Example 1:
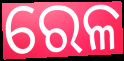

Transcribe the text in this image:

ରେଳ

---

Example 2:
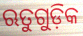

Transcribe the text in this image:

ଋତୁଗୁଡ଼ିକ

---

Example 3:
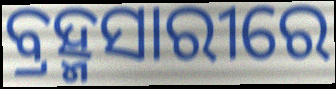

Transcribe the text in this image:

ବ୍ରହ୍ମସାରୀରେ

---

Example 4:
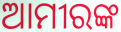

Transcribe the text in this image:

ଆମୀରଙ୍କ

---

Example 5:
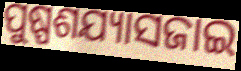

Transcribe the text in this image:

ପୁଷ୍ପଶଯ୍ୟାସଜାଇ